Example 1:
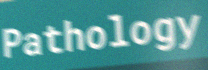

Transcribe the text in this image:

Pathology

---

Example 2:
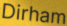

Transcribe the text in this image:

Dirham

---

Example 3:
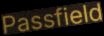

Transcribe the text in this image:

Passfield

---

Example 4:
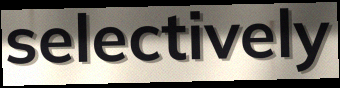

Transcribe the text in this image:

selectively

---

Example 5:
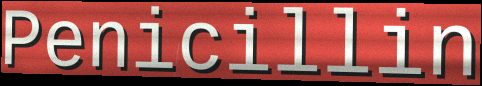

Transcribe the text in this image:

Penicillin